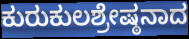
ಕುರುಕುಲಶ್ರೇಷ್ಠನಾದ